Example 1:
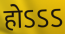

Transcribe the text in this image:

होऽऽऽ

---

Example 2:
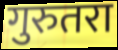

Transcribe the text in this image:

गुरुतरा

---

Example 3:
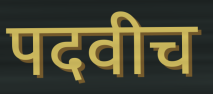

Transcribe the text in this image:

पदवीच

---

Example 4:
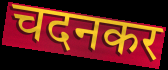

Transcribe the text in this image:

चदनकर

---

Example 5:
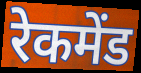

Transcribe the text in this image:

रेकमेंड